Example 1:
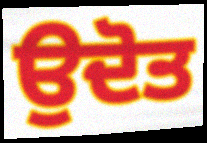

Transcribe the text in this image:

ਉਦੋਤ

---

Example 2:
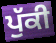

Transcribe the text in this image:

ਪੁੱਕੀ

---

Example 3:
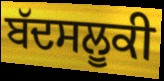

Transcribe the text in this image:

ਬੱਦਸਲੂਕੀ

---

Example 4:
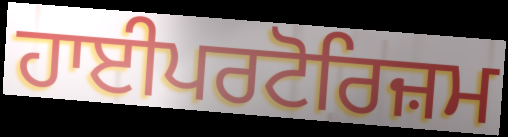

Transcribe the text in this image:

ਹਾਈਪਰਟੋਰਿਜ਼ਮ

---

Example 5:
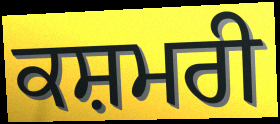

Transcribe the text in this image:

ਕਸ਼ਮਰੀ